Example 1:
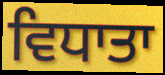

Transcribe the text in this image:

ਵਿਧਾਤਾ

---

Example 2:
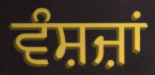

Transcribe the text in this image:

ਵੰਸ਼ਜ਼ਾਂ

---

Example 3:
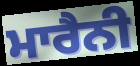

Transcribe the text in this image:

ਮਾਰੈਨੀ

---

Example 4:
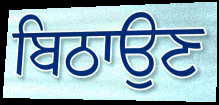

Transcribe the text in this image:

ਬਿਠਾਉਣ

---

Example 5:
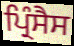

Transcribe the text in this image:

ਪ੍ਰਿੰਸੈਸ